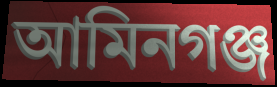
আমিনগঞ্জ